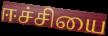
ஈச்சியை